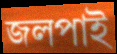
জলপাই